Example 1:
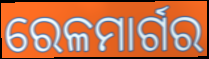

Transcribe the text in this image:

ରେଳମାର୍ଗର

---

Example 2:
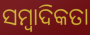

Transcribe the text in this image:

ସମ୍ବାଦିକତା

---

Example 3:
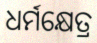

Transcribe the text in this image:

ଧର୍ମକ୍ଷେତ୍ର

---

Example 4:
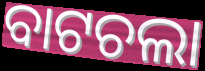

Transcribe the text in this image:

ବାଟଚଲା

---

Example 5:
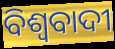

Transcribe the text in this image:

ବିଶ୍ଵବାଦୀ